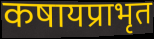
कषायप्राभृत